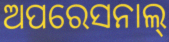
ଅପରେସନାଲ୍